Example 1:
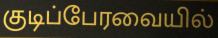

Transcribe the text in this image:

குடிப்பேரவையில்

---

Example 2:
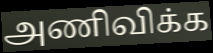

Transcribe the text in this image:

அணிவிக்க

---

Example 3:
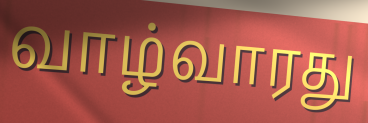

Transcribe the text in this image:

வாழ்வாரது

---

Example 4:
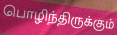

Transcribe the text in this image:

பொழிந்திருக்கும்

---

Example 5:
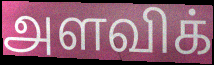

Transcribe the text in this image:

அளவிக்